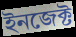
ইনজেক্ট